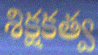
శిక్షకత్వ